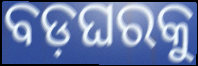
ବଡ଼ଘରକୁ